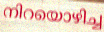
നിറയൊഴിച്ച